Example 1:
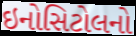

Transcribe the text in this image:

ઇનોસિટોલનો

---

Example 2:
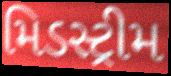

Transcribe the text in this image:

મિડસ્ટ્રીમ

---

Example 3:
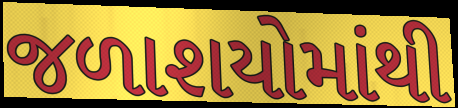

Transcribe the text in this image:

જળાશયોમાંથી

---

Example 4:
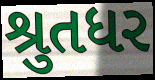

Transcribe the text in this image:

શ્રુતધર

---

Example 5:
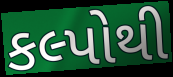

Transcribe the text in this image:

કલ્પોથી